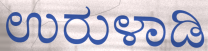
ಉರುಳಾಡಿ